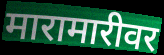
मारामारीवर